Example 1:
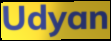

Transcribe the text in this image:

Udyan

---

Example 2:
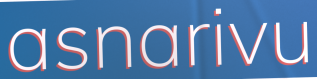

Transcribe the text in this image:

asnarivu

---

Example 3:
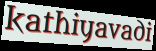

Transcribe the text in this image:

kathiyavadi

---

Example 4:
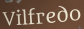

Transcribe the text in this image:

Vilfredo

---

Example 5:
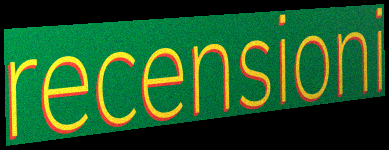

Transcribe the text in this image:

recensioni